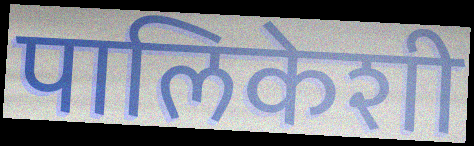
पालिकेशी